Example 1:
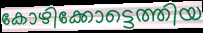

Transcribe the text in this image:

കോഴിക്കോട്ടെത്തിയ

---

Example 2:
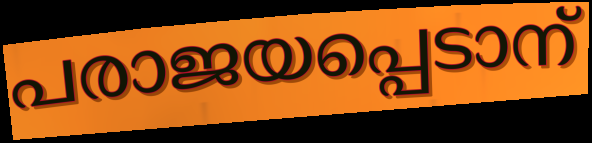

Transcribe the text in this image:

പരാജയപ്പെടാന്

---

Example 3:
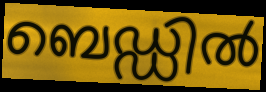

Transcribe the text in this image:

ബെഡ്ഡിൽ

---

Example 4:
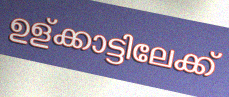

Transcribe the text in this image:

ഉള്ക്കാട്ടിലേക്ക്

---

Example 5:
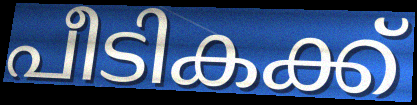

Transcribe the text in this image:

പീടികക്ക്